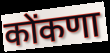
कोंकणा